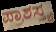
ಪ್ರಾಶಸ್ತ್ಯ